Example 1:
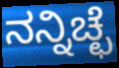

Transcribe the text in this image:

ನನ್ನಿಚ್ಛೆ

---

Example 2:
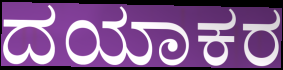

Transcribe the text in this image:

ದಯಾಕರ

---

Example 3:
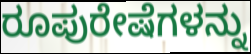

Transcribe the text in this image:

ರೂಪುರೇಷೆಗಳನ್ನು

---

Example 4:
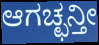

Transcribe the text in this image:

ಆಗಚ್ಛನ್ತೀ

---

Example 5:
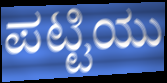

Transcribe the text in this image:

ಪಟ್ಟಿಯು